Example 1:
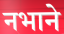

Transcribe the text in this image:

नभाने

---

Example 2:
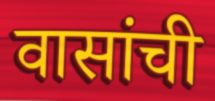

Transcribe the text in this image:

वासांची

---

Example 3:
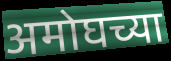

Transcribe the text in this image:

अमोघच्या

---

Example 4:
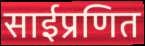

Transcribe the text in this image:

साईप्रणित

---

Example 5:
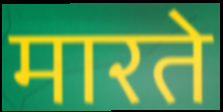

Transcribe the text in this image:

मारते